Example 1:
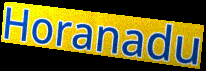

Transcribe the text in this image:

Horanadu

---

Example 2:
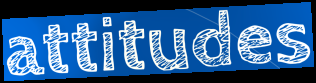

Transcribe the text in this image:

attitudes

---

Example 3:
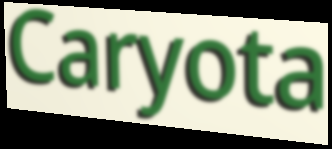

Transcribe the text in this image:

Caryota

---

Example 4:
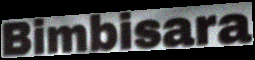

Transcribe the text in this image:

Bimbisara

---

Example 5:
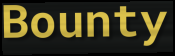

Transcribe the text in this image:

Bounty